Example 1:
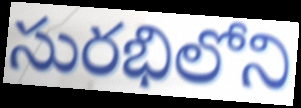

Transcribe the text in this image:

సురభిలోని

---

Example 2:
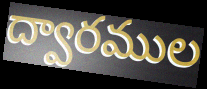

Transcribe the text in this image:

ద్వారముల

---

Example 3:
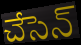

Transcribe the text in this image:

చేసెన్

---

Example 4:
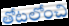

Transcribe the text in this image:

తోటలోంచి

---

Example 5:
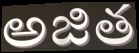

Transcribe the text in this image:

అజిత